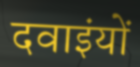
दवाइंयों